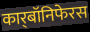
कार्‌बॉनिफेरस